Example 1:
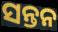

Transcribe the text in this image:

ସନ୍ତନ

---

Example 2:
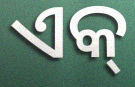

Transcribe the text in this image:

ଏକ୍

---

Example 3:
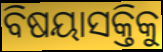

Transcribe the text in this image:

ବିଷୟାସକ୍ତିକୁ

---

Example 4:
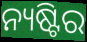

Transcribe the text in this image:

ନ୍ୟଷ୍ଟିର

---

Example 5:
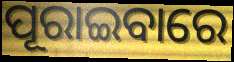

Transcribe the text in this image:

ପୂରାଇବାରେ